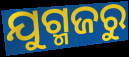
ଯୁଗ୍ମଜରୁ